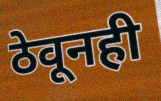
ठेवूनही